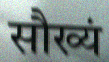
सौख्यं